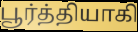
பூர்த்தியாகி